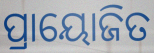
ପ୍ରାୟୋଜିତ